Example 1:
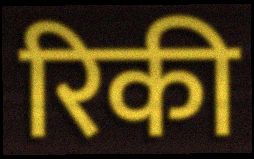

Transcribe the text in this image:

रिकी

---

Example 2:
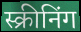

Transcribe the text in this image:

स्क्रीनिंग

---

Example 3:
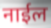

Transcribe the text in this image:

नाईल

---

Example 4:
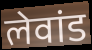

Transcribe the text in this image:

लेवांड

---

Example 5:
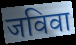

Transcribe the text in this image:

जविवा